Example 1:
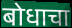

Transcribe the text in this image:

बोधाचा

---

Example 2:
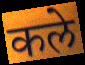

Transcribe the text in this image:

कले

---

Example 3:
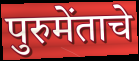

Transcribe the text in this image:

पुरुमेंताचे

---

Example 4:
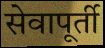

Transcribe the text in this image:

सेवापूर्ती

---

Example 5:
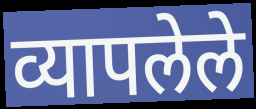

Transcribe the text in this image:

व्यापलेले